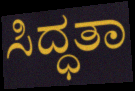
ಸಿದ್ಧತಾ